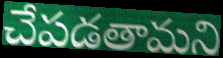
చేపడతామని